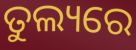
ତୁଲ୍ୟରେ